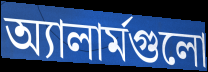
অ্যালার্মগুলো